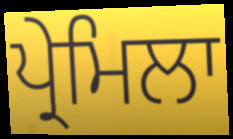
ਪ੍ਰੇਮਿਲਾ